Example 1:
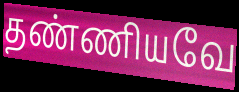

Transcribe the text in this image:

தண்ணியவே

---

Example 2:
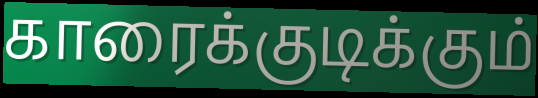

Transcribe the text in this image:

காரைக்குடிக்கும்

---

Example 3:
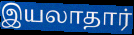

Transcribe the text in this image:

இயலாதார்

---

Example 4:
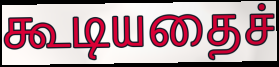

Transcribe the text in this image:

கூடியதைச்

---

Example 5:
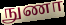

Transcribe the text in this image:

நுணா